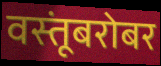
वस्तूंबरोबर